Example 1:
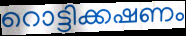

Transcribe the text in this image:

റൊട്ടിക്കഷണം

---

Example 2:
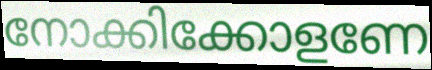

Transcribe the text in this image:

നോക്കിക്കോളണേ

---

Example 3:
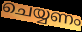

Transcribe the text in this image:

ചെയ്യണം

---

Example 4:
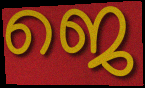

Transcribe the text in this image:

ജെ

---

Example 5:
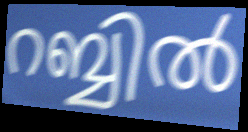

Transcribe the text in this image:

റബ്ബിൽ